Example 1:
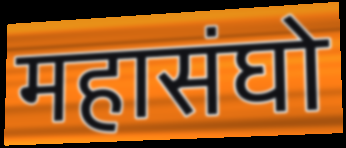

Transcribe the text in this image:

महासंघो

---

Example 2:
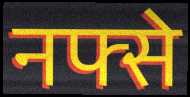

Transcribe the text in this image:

नफ्से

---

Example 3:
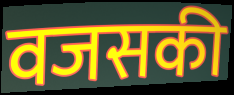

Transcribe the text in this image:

वजसकी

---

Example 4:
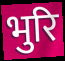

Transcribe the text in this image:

भुरि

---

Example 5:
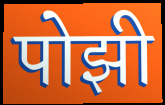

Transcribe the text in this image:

पोझी